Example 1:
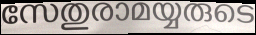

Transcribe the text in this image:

സേതുരാമയ്യരുടെ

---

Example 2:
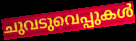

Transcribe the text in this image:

ചുവടുവെപ്പുകൾ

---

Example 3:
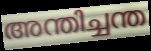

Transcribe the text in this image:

അന്തിച്ചന്ത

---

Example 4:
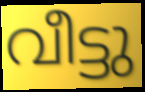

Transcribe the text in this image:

വീട്ടു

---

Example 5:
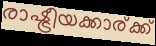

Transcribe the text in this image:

രാഷ്ട്രീയക്കാര്ക്ക്